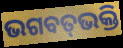
ଭଗବତ୍‌ଭକ୍ତି